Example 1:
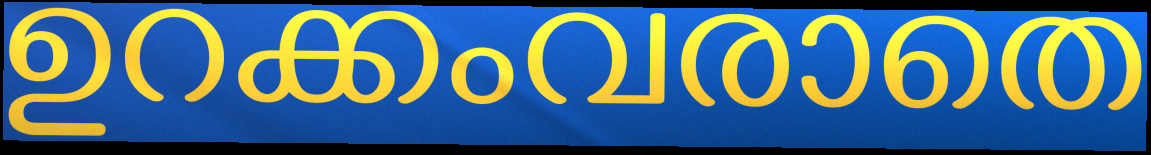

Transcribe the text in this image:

ഉറക്കംവരാതെ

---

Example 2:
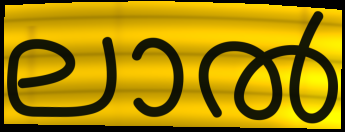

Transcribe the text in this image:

ലാൽ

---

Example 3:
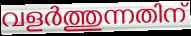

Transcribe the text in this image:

വളർത്തുന്നതിന്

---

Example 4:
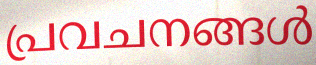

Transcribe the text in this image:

പ്രവചനങ്ങൾ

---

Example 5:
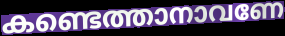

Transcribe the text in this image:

കണ്ടെത്താനാവണേ